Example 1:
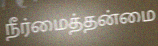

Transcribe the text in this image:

நீர்மைத்தன்மை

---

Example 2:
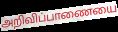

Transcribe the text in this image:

அறிவிப்பாணையை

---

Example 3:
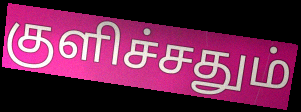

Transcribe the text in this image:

குளிச்சதும்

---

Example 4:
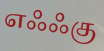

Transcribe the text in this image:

எஃஃகு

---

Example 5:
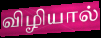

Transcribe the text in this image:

விழியால்